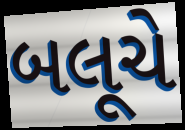
બલૂચે